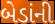
બેડાંની